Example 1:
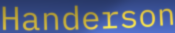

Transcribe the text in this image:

Handerson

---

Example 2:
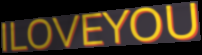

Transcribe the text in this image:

ILOVEYOU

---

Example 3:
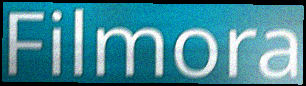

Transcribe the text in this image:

Filmora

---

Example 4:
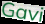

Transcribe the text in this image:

Gavi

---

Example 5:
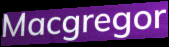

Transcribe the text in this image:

Macgregor